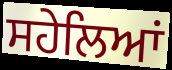
ਸਹੇਲਿਆਂ